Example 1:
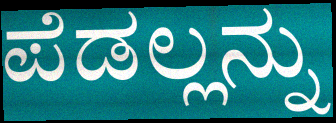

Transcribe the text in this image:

ಪೆಡಲ್ಲನ್ನು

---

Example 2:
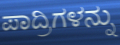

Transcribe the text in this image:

ಪಾದ್ರಿಗಳನ್ನು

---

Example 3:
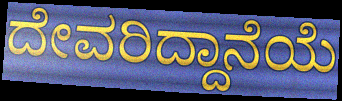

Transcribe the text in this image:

ದೇವರಿದ್ದಾನೆಯೆ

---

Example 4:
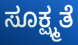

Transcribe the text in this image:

ಸೂಕ್ಷ್ಮತೆ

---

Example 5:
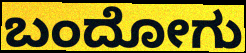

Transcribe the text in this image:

ಬಂದೋಗು